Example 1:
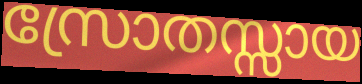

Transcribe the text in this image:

സ്രോതസ്സായ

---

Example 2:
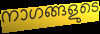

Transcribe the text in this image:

നാഗങ്ങളുടെ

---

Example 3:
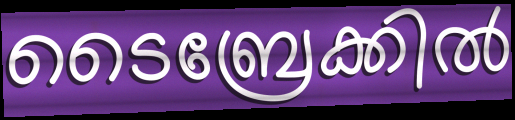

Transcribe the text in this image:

ടൈബ്രേക്കിൽ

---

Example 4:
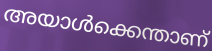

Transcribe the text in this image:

അയാൾക്കെന്താണ്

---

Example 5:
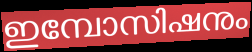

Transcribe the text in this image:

ഇമ്പോസിഷനും